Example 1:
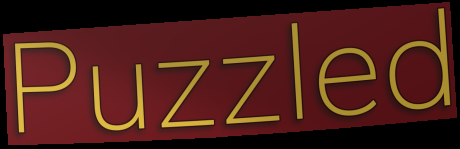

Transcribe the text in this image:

Puzzled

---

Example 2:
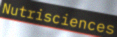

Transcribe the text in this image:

Nutrisciences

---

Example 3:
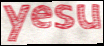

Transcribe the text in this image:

yesu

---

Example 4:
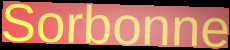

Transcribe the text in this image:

Sorbonne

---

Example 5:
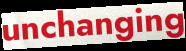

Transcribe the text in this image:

unchanging